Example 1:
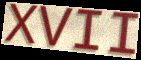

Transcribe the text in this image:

XVII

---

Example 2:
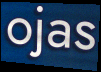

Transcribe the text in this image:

ojas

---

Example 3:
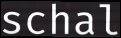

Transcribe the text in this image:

schal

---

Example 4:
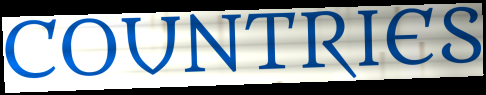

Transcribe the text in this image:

COUNTRIES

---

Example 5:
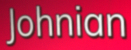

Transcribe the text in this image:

Johnian